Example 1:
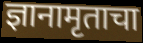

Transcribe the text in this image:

ज्ञानामृताचा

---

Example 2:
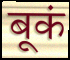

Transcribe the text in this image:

बूकं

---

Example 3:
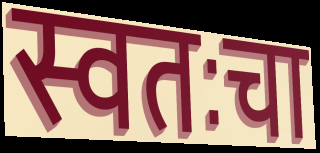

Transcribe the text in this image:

स्वतःचा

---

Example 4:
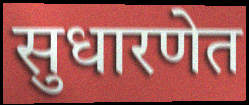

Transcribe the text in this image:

सुधारणेत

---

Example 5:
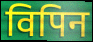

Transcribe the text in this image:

विपिन